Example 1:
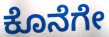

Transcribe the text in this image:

ಕೊನೆಗೇ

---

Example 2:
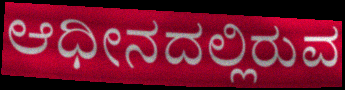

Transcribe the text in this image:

ಆಧೀನದಲ್ಲಿರುವ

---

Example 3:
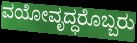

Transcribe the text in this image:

ವಯೋವೃದ್ಧರೊಬ್ಬರು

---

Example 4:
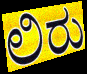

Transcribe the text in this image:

ಲಿರು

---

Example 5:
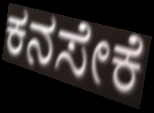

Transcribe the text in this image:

ಕನಸೇಕೆ